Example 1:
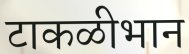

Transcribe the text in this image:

टाकळीभान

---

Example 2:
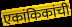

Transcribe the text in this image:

एकांकिकांची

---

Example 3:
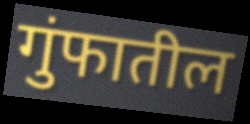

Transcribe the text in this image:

गुंफातील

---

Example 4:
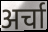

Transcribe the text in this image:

अर्चा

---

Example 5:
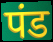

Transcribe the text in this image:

पंड